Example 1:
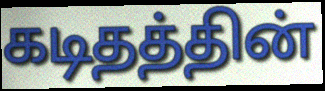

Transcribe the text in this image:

கடிதத்தின்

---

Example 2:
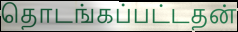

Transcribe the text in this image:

தொடங்கப்பட்டதன்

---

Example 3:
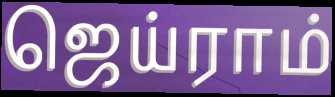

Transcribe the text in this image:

ஜெய்ராம்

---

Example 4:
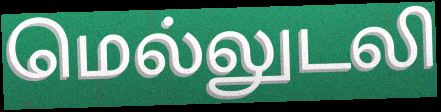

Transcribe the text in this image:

மெல்லுடலி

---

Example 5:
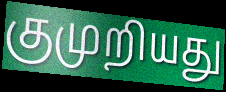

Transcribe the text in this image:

குமுறியது